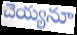
చెయ్యనూ